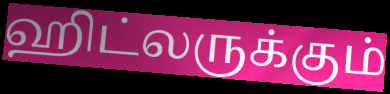
ஹிட்லருக்கும்